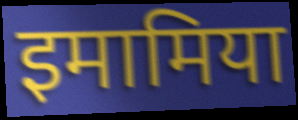
इमामिया